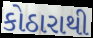
કોઠારાથી